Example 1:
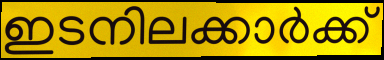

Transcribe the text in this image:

ഇടനിലക്കാർക്ക്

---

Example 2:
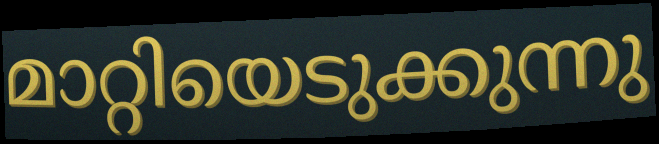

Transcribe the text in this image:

മാറ്റിയെടുക്കുന്നു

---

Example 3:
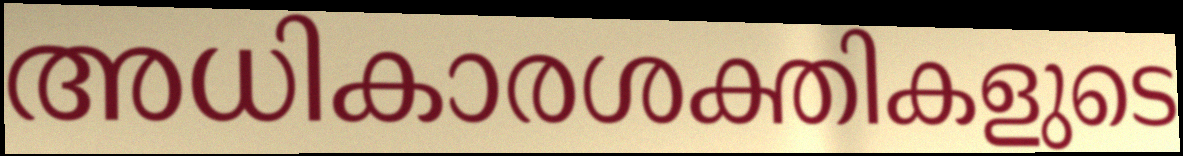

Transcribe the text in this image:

അധികാരശക്തികളുടെ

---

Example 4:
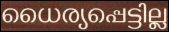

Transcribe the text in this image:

ധൈര്യപ്പെട്ടില്ല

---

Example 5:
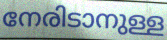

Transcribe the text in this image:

നേരിടാനുള്ള